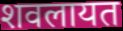
शवलायत